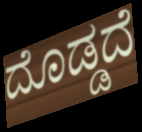
ದೊಡ್ಡದೆ